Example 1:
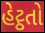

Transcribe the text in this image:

હેટ્ઠતો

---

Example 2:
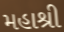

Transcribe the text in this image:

મહાશ્રી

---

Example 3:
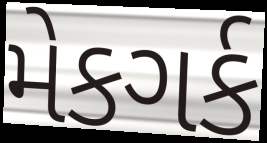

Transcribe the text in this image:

મેકગર્ક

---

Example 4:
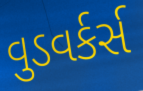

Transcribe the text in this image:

વુડવર્કર્સ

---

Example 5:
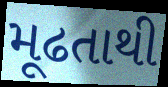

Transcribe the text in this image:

મૂઢતાથી